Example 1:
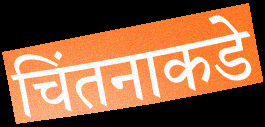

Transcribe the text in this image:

चिंतनाकडे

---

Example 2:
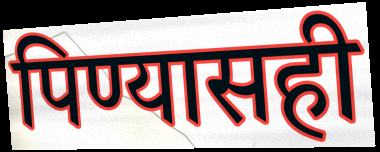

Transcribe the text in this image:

पिण्यासही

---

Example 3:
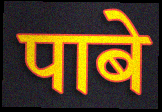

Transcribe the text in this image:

पाबे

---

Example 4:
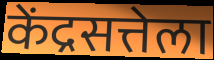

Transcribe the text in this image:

केंद्रसत्तेला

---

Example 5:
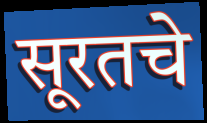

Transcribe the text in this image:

सूरतचे